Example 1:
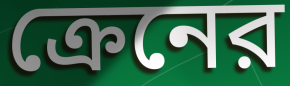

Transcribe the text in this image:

ক্রেনের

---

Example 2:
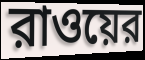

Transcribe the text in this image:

রাওয়ের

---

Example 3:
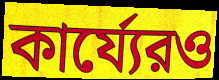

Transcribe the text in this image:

কার্য্যেরও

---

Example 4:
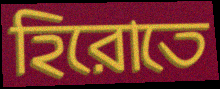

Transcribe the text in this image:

হিরোতে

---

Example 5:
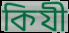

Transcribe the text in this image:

কিযী